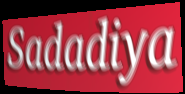
Sadadiya